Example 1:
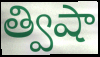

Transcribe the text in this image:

త్విషా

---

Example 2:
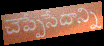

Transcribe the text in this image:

చెప్పేసేదాన్ని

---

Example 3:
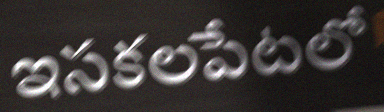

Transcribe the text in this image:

ఇసకలపేటలో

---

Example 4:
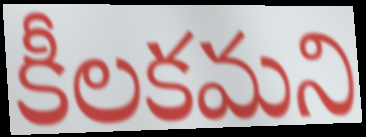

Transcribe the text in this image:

కీలకమని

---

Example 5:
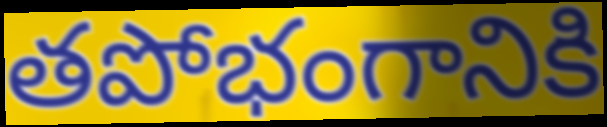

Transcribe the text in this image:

తపోభంగానికి